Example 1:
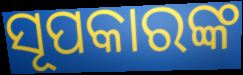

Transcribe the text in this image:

ସୂପକାରଙ୍କ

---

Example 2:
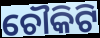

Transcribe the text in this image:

ଚୌକିଟି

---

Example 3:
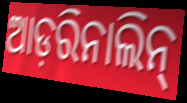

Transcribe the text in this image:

ଆଡ଼ରିନାଲିନ୍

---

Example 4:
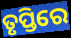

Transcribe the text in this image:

ତୃପ୍ତିରେ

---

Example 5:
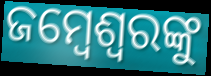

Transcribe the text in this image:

ଜମ୍ବେଶ୍ୱରଙ୍କୁ